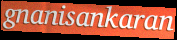
gnanisankaran